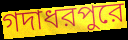
গদাধরপুরে